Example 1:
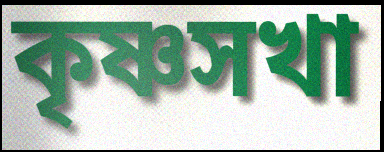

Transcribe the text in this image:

কৃষ্ণসখা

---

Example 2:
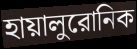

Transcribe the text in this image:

হায়ালুরোনিক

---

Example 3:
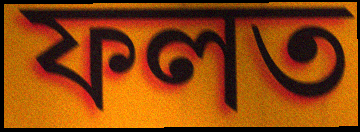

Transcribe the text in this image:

ফলত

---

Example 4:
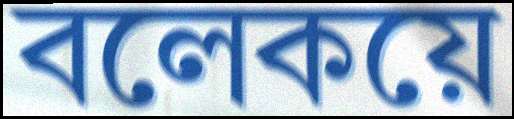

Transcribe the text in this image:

বলেকয়ে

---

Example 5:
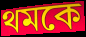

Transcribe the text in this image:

থমকে